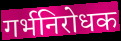
गर्भनिरोधक